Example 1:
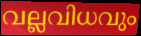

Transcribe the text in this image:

വല്ലവിധവും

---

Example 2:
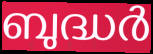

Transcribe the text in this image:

ബുദ്ധർ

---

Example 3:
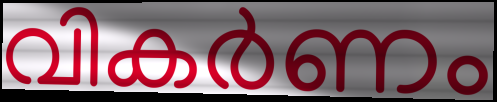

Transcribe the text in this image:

വികർണം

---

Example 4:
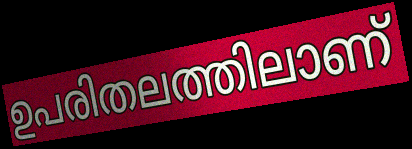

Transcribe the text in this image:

ഉപരിതലത്തിലാണ്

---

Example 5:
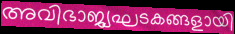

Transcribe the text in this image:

അവിഭാജ്യഘടകങ്ങളായി